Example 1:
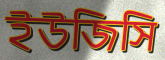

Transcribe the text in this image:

ইউজিসি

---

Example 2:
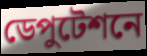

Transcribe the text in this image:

ডেপুটেশনে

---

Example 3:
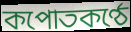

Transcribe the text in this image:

কপোতকণ্ঠে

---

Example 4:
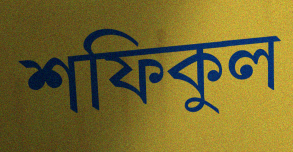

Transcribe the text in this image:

শফিকুল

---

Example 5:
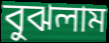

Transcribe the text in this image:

বুঝলাম